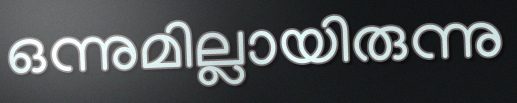
ഒന്നുമില്ലായിരുന്നു